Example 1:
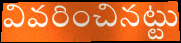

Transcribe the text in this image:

వివరించినట్టు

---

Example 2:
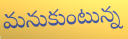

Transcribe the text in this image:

మనుకుంటున్న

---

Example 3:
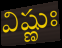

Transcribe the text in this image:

విష్ణుః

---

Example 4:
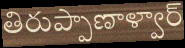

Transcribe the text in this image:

తిరుప్పాణాళ్వార్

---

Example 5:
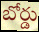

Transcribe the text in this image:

బోర్డు